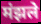
मंझले